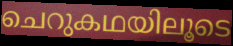
ചെറുകഥയിലൂടെ